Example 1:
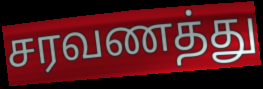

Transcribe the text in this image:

சரவணத்து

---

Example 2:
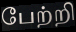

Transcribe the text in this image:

பேற்றி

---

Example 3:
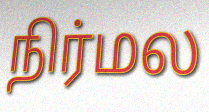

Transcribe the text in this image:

நிர்மல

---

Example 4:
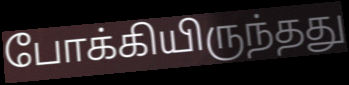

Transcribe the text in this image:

போக்கியிருந்தது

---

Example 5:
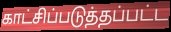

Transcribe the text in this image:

காட்சிப்படுத்தப்பட்ட